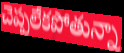
చెప్పలేకపోతున్నా